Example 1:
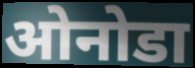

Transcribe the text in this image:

ओनोडा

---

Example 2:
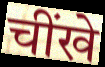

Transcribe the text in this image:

चींखे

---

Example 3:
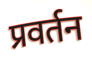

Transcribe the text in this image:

प्रवर्तन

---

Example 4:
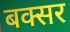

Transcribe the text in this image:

बक्सर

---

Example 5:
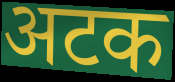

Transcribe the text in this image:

अटक